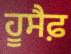
ਹੂਸੈਫ਼